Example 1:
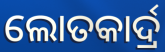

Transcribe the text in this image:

ଲୋତକାର୍ଦ୍ର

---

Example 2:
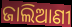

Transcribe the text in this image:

ଜାଲିଆଣୀ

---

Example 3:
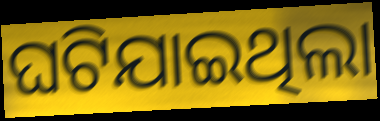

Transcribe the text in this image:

ଘଟିଯାଇଥିଲା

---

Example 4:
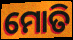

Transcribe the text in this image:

ମୋତି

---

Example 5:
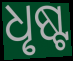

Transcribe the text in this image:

ଧୃଷ୍ଟ